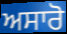
ਅਸਾਰੋ